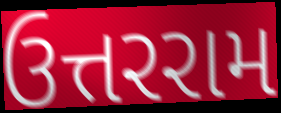
ઉત્તરરામ